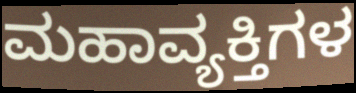
ಮಹಾವ್ಯಕ್ತಿಗಳ